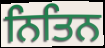
ਨਿਤਿਨ